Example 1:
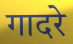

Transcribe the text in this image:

गादरे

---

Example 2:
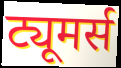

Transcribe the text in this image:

ट्यूमर्स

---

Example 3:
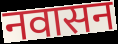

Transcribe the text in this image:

नवासन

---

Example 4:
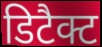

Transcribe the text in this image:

डिटैक्ट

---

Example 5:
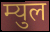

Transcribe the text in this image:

म्युल